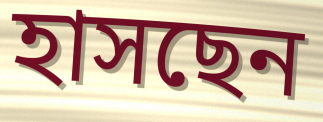
হাসছেন